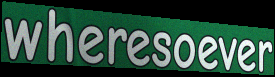
wheresoever